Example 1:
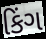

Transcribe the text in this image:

કિંગ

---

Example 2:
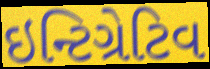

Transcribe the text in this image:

ઇન્ટિગ્રેટિવ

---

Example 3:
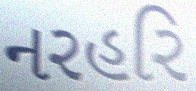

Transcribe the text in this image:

નરહરિ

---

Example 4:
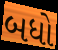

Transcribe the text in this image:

બધો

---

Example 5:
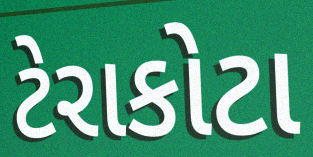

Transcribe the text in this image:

ટેરાકોટા